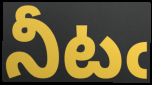
నీటఁ